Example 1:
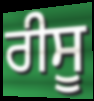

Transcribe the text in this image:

ਰੀਸੂ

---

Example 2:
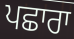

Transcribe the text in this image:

ਪਛਾਰਾ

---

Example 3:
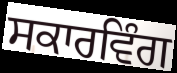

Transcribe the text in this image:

ਸਕਾਰਵਿੰਗ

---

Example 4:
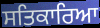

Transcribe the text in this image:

ਸਤਿਕਾਰਿਆ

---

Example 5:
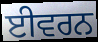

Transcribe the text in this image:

ਈਵਰਨ